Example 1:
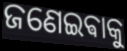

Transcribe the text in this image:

ଜଣେଇଵାକୁ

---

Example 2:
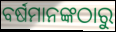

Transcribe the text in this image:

ବର୍ଷମାନଙ୍କଠାରୁ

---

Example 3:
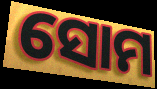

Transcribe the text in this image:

ସୋମ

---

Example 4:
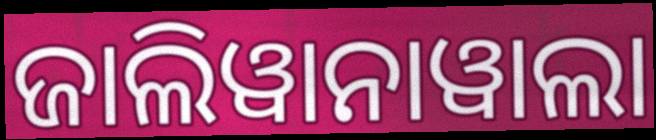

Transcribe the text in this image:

ଜାଲିୱାନାୱାଲା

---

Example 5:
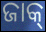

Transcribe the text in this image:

ଜାକ୍